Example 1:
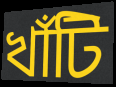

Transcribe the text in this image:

খাঁটি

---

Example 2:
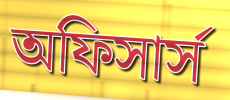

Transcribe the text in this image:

অফিসার্স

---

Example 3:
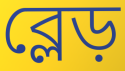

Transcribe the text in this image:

ব্লেড়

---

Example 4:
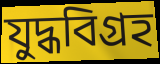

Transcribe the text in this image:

যুদ্ধবিগ্রহ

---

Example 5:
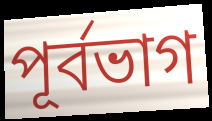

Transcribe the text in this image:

পূর্বভাগ